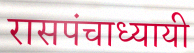
रासपंचाध्यायी